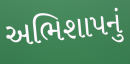
અભિશાપનું